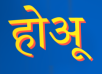
होअू